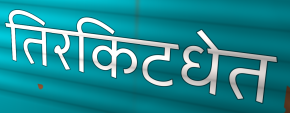
तिरकिटधेत